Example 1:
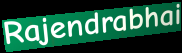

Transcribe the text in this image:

Rajendrabhai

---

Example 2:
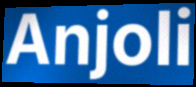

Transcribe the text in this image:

Anjoli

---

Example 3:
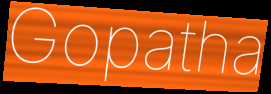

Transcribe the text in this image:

Gopatha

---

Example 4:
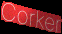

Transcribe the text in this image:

Corker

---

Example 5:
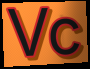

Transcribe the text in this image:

Vc